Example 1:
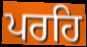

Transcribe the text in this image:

ਪਰਹਿ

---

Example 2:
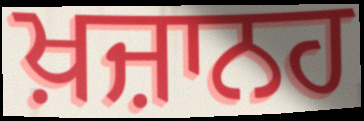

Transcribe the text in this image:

ਖ਼ਜ਼ਾਨਹ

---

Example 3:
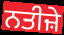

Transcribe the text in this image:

ਨਤੀਜ਼ੇ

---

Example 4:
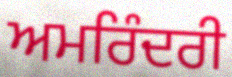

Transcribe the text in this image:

ਅਮਰਿੰਦਰੀ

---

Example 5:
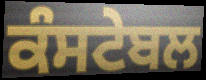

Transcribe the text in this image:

ਕੰਸਟੇਬਲ